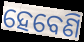
ହେବେଣି